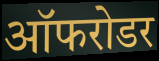
ऑफरोडर